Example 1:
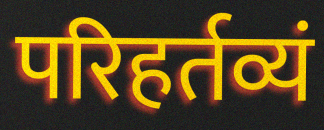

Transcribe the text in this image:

परिहर्तव्यं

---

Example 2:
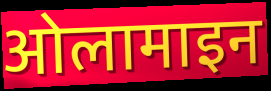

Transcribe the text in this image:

ओलामाइन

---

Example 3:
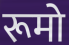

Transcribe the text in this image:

रूमो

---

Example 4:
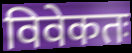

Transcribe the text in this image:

विवेकतः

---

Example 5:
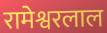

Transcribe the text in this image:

रामेश्वरलाल